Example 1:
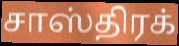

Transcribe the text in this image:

சாஸ்திரக்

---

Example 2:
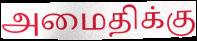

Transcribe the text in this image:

அமைதிக்கு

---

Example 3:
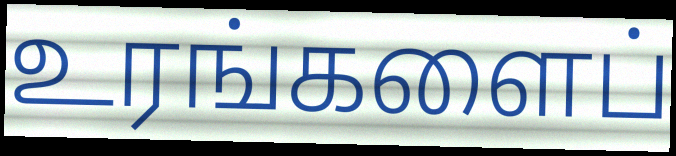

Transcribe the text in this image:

உரங்களைப்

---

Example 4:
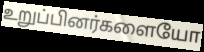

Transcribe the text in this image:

உறுப்பினர்களையோ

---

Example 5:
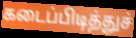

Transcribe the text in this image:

கடைப்பிடித்துச்